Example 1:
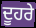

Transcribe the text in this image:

ਦੂਹਰੇ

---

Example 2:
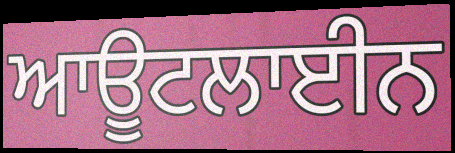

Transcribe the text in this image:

ਆਊਟਲਾਈਨ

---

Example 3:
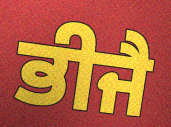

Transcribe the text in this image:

ਭੀਜੈ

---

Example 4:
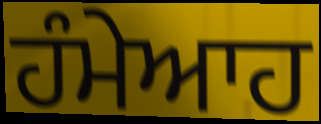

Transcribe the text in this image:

ਹੰਮੇਆਹ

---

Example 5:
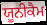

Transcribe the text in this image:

ਯੂਨੀਕੈਮ